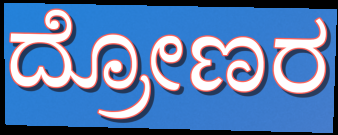
ದ್ರೋಣರ